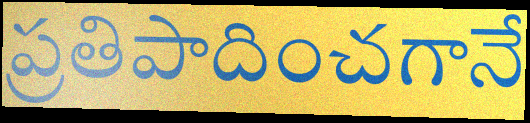
ప్రతిపాదించగానే